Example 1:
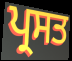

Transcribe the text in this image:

ਪ੍ਰਸਤ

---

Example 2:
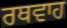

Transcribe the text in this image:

ਰਥਵਾਹ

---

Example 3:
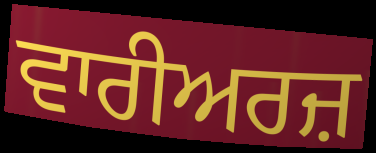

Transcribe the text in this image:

ਵਾਰੀਅਰਜ਼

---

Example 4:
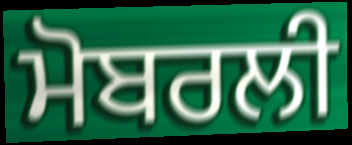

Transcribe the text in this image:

ਮੋਬਰਲੀ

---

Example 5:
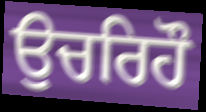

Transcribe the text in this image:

ਉਚਰਿਹੌ